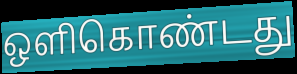
ஒளிகொண்டது